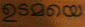
ഉടമയെ